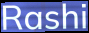
Rashi